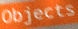
Objects